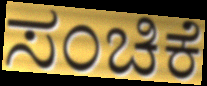
ಸಂಚಿಕೆ